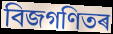
বিজগণিতৰ